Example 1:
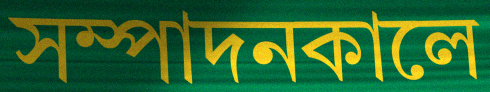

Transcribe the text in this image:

সম্পাদনকালে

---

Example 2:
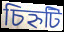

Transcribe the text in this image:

চিহ্নটি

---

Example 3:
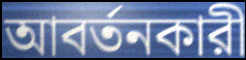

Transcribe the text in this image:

আবর্তনকারী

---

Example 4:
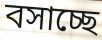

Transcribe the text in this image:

বসাচ্ছে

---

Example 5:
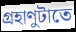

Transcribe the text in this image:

গ্রহাণুটাতে